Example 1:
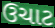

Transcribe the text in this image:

ઉચાટ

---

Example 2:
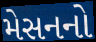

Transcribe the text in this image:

મેસનનો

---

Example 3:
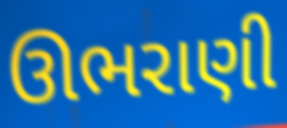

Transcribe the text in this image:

ઊભરાણી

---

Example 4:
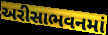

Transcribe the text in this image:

અરીસાભવનમાં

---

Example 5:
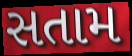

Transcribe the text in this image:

સતામ